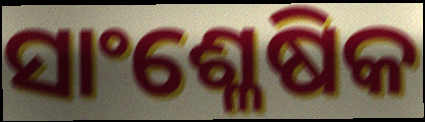
ସାଂଶ୍ଳେଷିକ